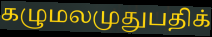
கழுமலமுதுபதிக்